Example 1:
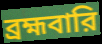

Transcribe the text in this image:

ব্রহ্মবারি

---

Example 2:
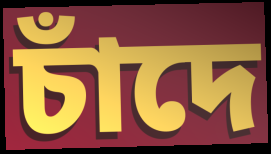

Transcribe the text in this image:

চাঁদে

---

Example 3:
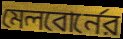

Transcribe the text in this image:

মেলবোর্নের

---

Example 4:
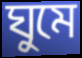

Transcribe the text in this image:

ঘুমে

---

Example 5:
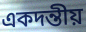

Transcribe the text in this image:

একদন্তীয়